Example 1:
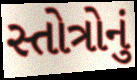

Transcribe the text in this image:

સ્તોત્રોનું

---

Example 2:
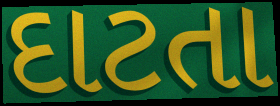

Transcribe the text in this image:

દાટતા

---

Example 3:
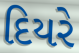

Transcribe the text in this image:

દિયરે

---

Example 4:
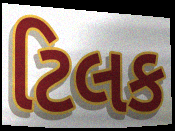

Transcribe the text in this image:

ટિલક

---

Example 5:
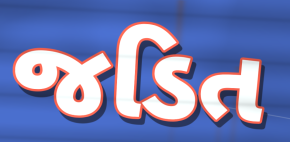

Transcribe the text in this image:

જડિત